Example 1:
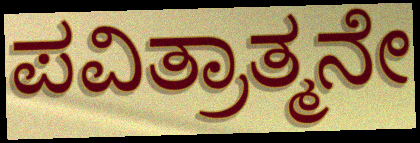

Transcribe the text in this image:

ಪವಿತ್ರಾತ್ಮನೇ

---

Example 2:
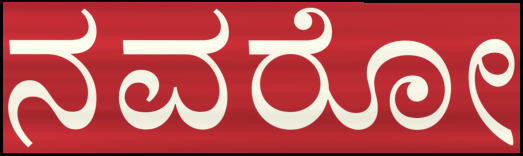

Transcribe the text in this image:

ನವರೋ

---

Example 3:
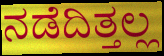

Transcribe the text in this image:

ನಡೆದಿತ್ತಲ್ಲ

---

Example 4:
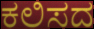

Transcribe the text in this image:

ಕಲಿಸದ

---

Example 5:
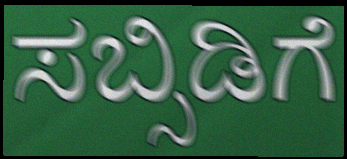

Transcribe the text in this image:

ಸಬ್ಸಿಡಿಗೆ